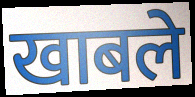
खाबले